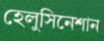
হেলুসিনেশান